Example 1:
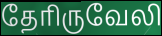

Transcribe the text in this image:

தேரிருவேலி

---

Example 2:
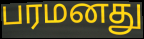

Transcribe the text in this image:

பரமனது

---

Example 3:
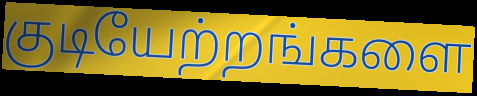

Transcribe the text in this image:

குடியேற்றங்களை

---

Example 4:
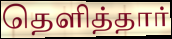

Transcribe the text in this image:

தெளித்தார்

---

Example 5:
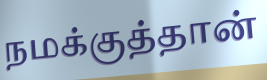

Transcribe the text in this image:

நமக்குத்தான்